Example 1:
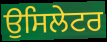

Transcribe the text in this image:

ਉਸਿਲੇਟਰ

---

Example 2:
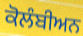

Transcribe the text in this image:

ਕੋਲੰਬੀਅਨ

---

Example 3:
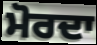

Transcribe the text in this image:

ਮੋਰਦਾ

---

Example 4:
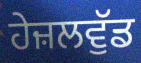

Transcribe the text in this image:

ਹੇਜ਼ਲਵੁੱਡ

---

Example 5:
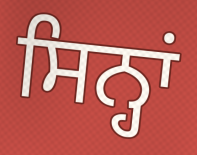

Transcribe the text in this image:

ਸਿਨ੍ਹਾਂ